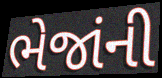
ભેજાંની